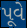
પૂવે